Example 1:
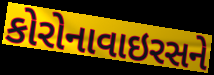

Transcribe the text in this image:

કોરોનાવાઇરસને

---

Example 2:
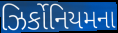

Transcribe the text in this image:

ઝિર્કોનિયમના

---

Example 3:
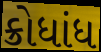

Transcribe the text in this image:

ક્રોધાંધ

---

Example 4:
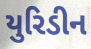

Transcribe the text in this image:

યુરિડીન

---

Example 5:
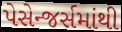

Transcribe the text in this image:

પેસેન્જર્સમાંથી